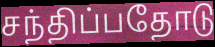
சந்திப்பதோடு